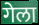
गेला